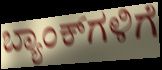
ಬ್ಯಾಂಕ್‌ಗಳಿಗೆ